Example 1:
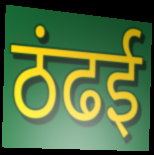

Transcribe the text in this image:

ठंढई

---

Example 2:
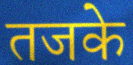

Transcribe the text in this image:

तजके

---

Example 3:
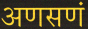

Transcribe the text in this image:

अणसणं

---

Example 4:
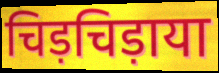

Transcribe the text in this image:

चिड़चिड़ाया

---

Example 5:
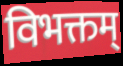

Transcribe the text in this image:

विभक्तम्